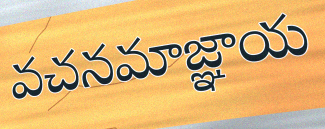
వచనమాజ్ఞాయ